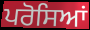
ਪਰੋਸਿਆਂ